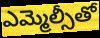
ఎమ్మెల్సీతో